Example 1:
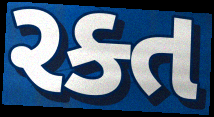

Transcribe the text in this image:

રક્ત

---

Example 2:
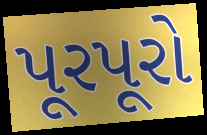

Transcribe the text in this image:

પૂરપૂરો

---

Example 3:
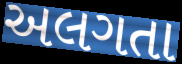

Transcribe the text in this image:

અલગતા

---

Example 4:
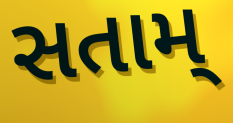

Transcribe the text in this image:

સતામ્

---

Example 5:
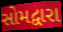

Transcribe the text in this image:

સોમદ્વારા